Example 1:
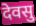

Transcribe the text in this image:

देवसु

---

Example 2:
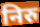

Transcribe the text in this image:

निरु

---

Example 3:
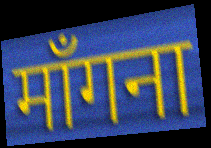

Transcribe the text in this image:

माँगना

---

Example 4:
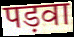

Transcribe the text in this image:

पड़वा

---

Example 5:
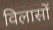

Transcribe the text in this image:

विलासों